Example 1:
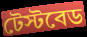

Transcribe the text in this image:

টেস্টবেড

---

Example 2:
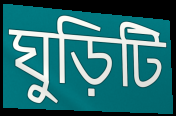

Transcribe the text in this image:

ঘুড়িটি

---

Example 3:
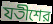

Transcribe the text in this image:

যতীশের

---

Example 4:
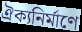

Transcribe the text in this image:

ঐক্যনির্মাণে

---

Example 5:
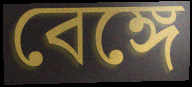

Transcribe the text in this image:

বেঙ্গে